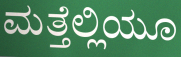
ಮತ್ತೆಲ್ಲಿಯೂ